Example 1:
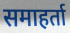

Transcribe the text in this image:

समाहर्ता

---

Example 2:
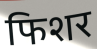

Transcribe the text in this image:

फिशर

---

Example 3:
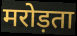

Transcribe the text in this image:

मरोड़ता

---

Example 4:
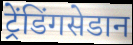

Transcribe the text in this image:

ट्रेंडिंगसेडान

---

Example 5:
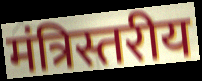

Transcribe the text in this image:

मंत्रिस्तरीय